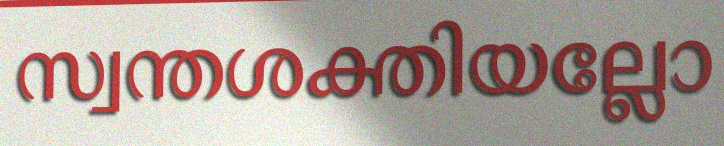
സ്വന്തശക്തിയല്ലോ